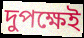
দুপক্ষেই